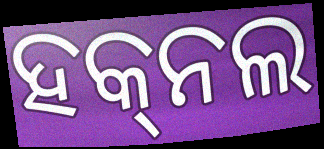
ହକ୍‌ନଲ